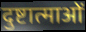
दुष्टात्माओं